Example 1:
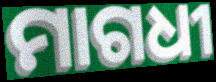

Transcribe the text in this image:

ମାଗଧୀ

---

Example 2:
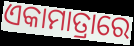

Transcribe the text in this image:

ଏକାମାତ୍ରାରେ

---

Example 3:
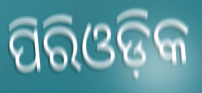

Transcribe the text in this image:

ପିରିଓଡ଼ିକ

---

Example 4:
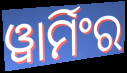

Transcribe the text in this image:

ୱାର୍ମିଂର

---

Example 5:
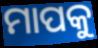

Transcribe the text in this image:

ମାପକୁ